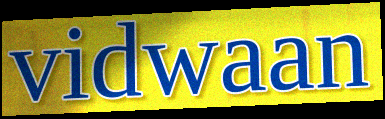
vidwaan